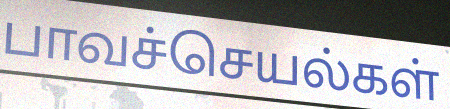
பாவச்செயல்கள்